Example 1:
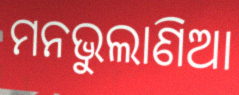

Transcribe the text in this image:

ମନଭୁଲାଣିଆ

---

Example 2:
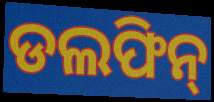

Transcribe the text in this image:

ଡଲଫିନ୍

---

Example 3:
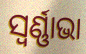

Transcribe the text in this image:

ସ୍ୱର୍ଣ୍ଣାଭା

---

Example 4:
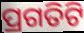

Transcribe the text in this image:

ପ୍ରଗତିଟି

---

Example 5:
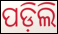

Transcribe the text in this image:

ପଡ଼ିଲି